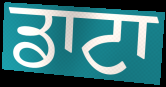
ਡਾਟਾ